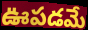
ఊపడమే